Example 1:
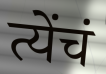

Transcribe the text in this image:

त्येंचं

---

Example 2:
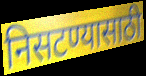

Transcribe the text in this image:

निसटण्यासाठी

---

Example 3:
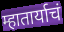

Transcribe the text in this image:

म्हातार्याचं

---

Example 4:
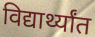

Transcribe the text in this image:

विद्यार्थ्यांत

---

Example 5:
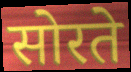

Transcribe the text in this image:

सोरते